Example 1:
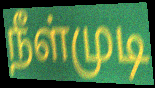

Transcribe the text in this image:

நீள்முடி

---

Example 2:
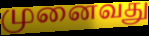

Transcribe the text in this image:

முனைவது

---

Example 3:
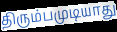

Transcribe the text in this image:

திரும்பமுடியாது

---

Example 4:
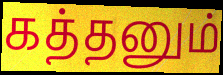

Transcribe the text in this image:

கத்தனும்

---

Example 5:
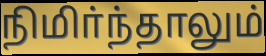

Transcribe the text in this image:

நிமிர்ந்தாலும்